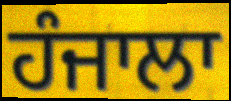
ਹੰਜਾਲਾ